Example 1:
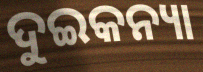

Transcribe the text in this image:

ଦୁଇକନ୍ୟା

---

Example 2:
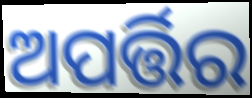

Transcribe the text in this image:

ଅପର୍ତ୍ତିର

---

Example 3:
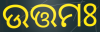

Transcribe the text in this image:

ଉତ୍ତମଃ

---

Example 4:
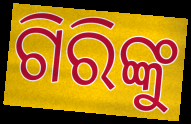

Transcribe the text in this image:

ଗିରିଙ୍କୁ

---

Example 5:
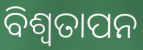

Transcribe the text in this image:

ବିଶ୍ବତାପନ